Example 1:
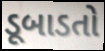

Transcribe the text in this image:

ડૂબાડતો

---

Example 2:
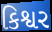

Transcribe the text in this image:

કિશ્વર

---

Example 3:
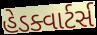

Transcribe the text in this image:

હેડક્વાર્ટર્સ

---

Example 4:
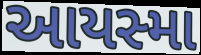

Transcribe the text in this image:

આયસ્મા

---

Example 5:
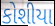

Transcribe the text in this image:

કોશીયા